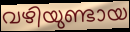
വഴിയുണ്ടായ